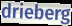
drieberg